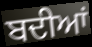
ਬਦੀਆਂ